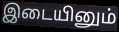
இடையினும்